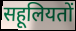
सहूलियतों